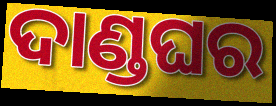
ଦାଣ୍ଡଘର